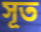
সূত